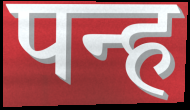
पन्ह